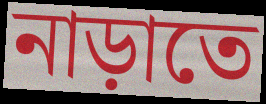
নাড়াতে